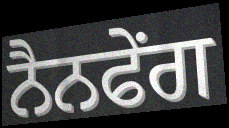
ਨੈਨਫੇਂਗ